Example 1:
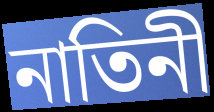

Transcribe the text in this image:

নাতিনী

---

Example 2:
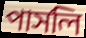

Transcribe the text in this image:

পার্সলি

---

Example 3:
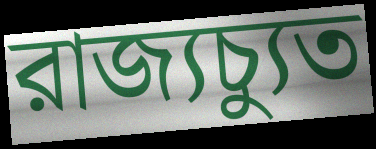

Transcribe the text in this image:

রাজ্যচ্যুত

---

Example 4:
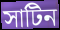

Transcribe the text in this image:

সাটিন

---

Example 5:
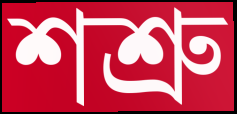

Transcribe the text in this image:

শশ্রু